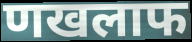
णखलाफ